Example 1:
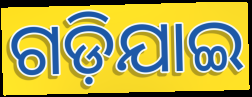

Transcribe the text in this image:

ଗଡ଼ିଯାଇ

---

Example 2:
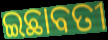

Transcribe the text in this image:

ଇଛାବତୀ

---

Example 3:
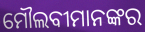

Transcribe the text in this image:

ମୌଲବୀମାନଙ୍କର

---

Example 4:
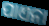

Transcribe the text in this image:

ପାଏନା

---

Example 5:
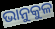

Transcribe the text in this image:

ଭାନୁକୁଳ